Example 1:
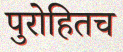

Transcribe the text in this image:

पुरोहितच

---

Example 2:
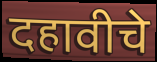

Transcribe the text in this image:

दहावीचे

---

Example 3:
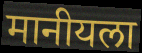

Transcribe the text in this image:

मानीयला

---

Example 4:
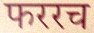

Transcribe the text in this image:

फररच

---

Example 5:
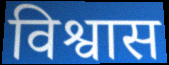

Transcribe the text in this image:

विश्वास